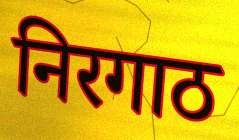
निरगाठ